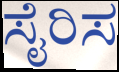
ಸೈರಿಸ